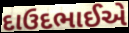
દાઉદભાઈએ